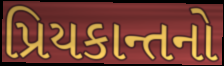
પ્રિયકાન્તનો